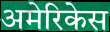
अमेरिकेस